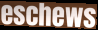
eschews